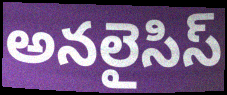
అనలైసిస్